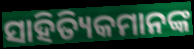
ସାହିତ୍ୟିକମାନଙ୍କ